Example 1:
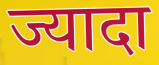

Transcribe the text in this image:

ज्यादा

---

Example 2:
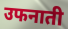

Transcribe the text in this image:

उफनाती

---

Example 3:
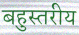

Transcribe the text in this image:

बहुस्तरीय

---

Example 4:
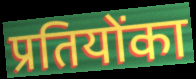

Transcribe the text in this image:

प्रतियोंका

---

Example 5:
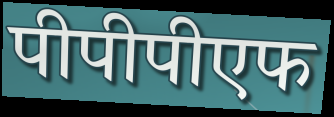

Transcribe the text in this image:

पीपीपीएफ